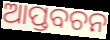
ଆପ୍ତବଚନ